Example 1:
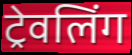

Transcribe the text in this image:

ट्रेवलिंग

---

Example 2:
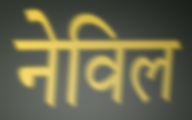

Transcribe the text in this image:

नेविल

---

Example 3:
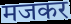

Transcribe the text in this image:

मजकर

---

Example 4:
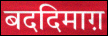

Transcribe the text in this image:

बददिमाग़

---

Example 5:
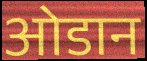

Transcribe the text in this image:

ओडान